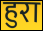
हुरा